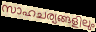
സാഹചര്യങ്ങളിലും